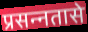
प्रसन्नतासे